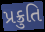
પ્રક્રુતિ